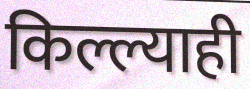
किल्ल्याही